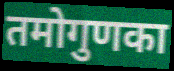
तमोगुणका